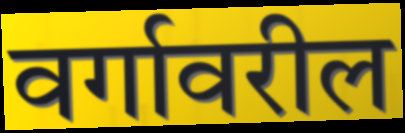
वर्गावरील